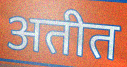
अतीत